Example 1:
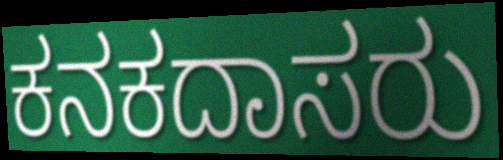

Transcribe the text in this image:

ಕನಕದಾಸರು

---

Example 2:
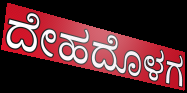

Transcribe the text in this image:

ದೇಹದೊಳಗ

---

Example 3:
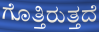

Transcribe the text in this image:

ಗೊತ್ತಿರುತ್ತದೆ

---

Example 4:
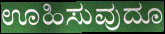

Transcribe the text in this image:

ಊಹಿಸುವುದೂ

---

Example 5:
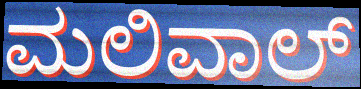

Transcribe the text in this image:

ಮಲಿವಾಲ್